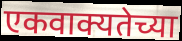
एकवाक्यतेच्या